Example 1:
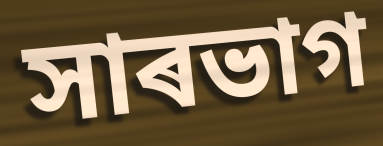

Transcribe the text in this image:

সাৰভাগ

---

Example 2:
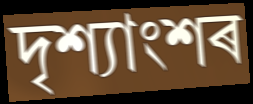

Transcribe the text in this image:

দৃশ্যাংশৰ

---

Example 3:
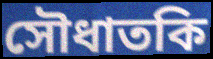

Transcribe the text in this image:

সৌধাতকি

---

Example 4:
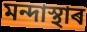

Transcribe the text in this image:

মন্দাস্থাৰ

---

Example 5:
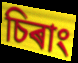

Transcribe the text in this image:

চিৰাং